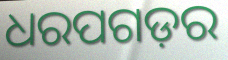
ଧରପଗଡ଼ର